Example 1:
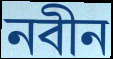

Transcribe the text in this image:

নবীন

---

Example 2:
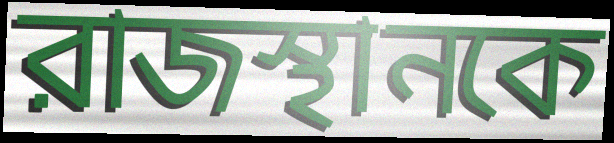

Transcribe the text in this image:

রাজস্থানকে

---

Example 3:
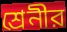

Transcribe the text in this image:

শ্রেনীর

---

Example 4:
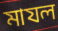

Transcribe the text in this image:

মাযল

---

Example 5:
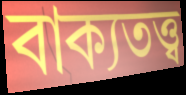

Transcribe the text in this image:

বাক্যতত্ত্ব